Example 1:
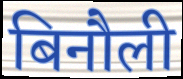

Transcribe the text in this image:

बिनौली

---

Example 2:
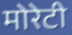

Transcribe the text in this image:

मोरेटी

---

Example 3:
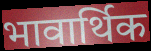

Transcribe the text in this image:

भावार्थिक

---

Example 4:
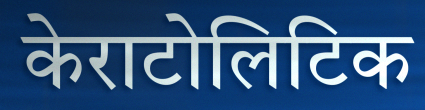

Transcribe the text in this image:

केराटोलिटिक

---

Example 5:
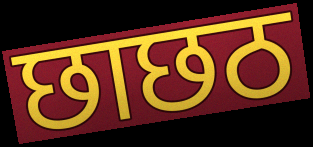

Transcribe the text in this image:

छाछठ